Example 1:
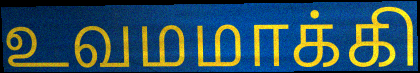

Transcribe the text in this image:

உவமமாக்கி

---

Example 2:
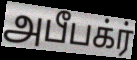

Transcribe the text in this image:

அபீபக்ர்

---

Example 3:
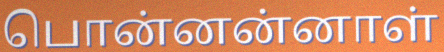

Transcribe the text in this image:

பொன்னன்னாள்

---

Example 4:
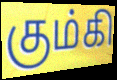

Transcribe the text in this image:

கும்கி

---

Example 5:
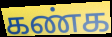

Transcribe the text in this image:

கண்க